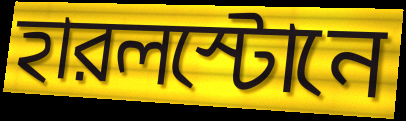
হারলস্টোনে